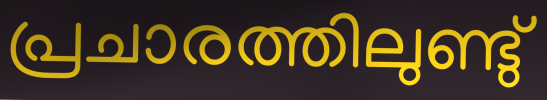
പ്രചാരത്തിലുണ്ടു്